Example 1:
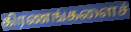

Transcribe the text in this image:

கிரணங்களைச்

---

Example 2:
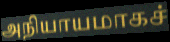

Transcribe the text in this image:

அநியாயமாகச்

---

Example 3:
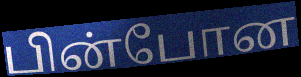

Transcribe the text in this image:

பின்போன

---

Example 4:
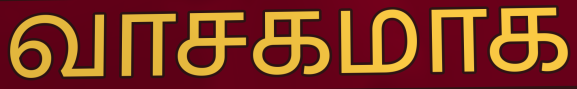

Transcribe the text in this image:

வாசகமாக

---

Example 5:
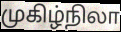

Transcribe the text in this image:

முகிழ்நிலா